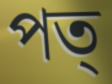
পত্